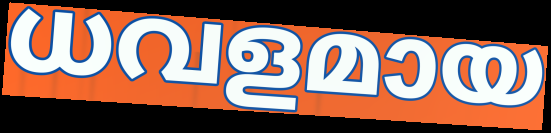
ധവളമായ